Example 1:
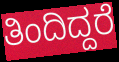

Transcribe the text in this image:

ತಿಂದಿದ್ದರೆ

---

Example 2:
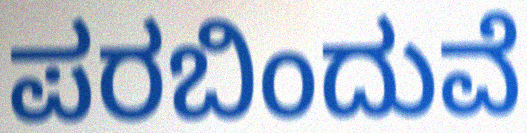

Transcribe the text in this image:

ಪರಬಿಂದುವೆ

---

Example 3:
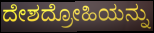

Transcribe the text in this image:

ದೇಶದ್ರೋಹಿಯನ್ನು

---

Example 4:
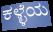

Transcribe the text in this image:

ಕಳ್ಳೆಯ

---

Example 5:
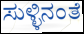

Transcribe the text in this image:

ಸುಳ್ಳಿನಂತೆ